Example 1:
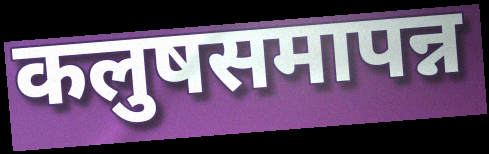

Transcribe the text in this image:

कलुषसमापन्न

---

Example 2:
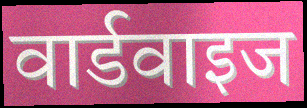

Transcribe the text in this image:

वार्डवाइज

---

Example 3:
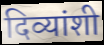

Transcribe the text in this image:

दिव्यांशी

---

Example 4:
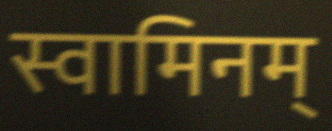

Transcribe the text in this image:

स्वामिनम्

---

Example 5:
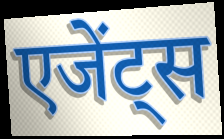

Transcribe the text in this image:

एजेंट्स